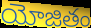
యోజితం